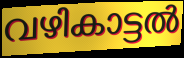
വഴികാട്ടൽ